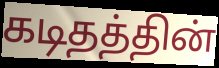
கடிதத்தின்